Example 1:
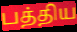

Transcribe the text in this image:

பத்திய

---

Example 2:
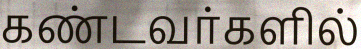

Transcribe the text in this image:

கண்டவர்களில்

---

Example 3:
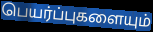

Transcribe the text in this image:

பெயர்ப்புகளையும்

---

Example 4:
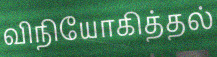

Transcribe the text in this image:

விநியோகித்தல்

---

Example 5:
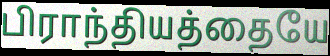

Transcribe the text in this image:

பிராந்தியத்தையே